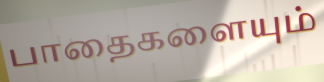
பாதைகளையும்